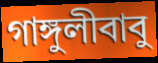
গাঙ্গুলীবাবু